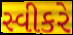
સ્વીકરે